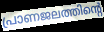
പ്രാണജലത്തിന്റെ